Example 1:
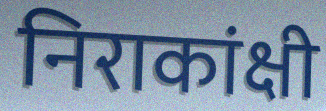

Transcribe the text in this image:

निराकांक्षी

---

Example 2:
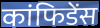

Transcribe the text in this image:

कांफिडेंस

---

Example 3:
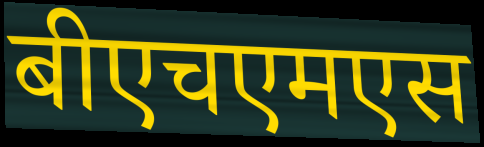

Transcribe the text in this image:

बीएचएमएस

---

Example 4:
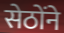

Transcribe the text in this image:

सेठोंने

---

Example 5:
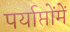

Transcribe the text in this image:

पर्याप्तोंमें